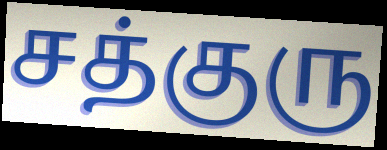
சத்குரு